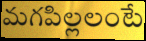
మగపిల్లలంటే